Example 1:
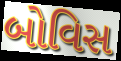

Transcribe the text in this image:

બોવિસ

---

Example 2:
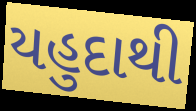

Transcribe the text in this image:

યહુદાથી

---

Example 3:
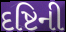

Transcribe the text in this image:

દષ્ટિની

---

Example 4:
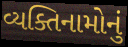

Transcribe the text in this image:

વ્યક્તિનામોનું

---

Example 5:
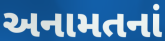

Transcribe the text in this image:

અનામતનાં